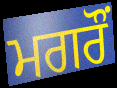
ਮਗਰੌਂ